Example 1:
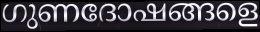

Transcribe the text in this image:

ഗുണദോഷങ്ങളെ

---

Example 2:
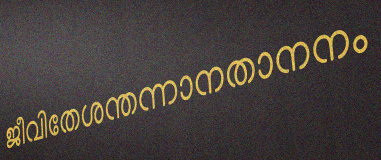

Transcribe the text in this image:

ജീവിതേശന്തന്നാനതാനനം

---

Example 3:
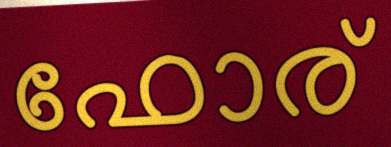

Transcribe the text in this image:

ഫോര്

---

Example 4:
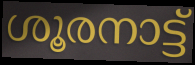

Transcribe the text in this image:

ശൂരനാട്ട്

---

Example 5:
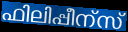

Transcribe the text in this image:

ഫിലിപ്പീന്സ്